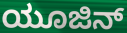
ಯೂಜಿನ್